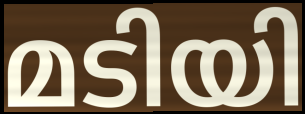
മടിയി